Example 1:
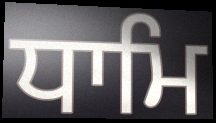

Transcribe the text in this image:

ਧਾਮਿ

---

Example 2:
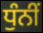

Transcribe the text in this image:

ਧੁੰਨੀਂ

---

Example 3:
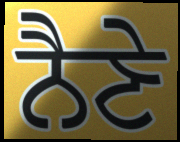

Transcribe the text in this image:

ਨੈਣੇ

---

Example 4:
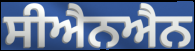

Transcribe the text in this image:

ਸੀਐਨਐਨ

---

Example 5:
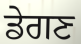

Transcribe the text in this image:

ਡੇਗਣ